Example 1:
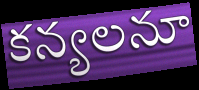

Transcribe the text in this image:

కన్యలనూ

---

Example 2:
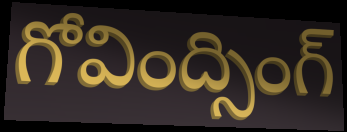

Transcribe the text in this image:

గోవింద్సింగ్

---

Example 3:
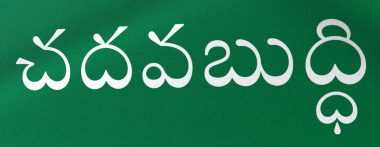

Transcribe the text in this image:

చదవబుద్ధి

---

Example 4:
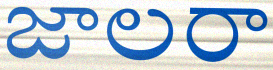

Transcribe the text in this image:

జాలరా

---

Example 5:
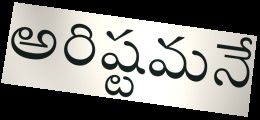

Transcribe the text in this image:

అరిష్టమనే